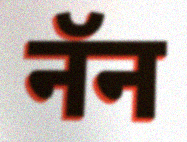
नॅन